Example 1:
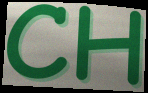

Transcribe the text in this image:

CH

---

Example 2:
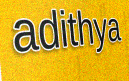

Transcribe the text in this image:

adithya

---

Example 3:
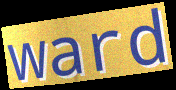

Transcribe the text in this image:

ward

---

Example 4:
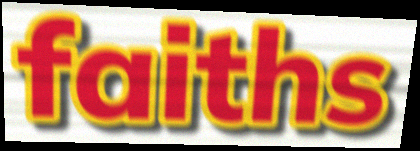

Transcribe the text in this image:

faiths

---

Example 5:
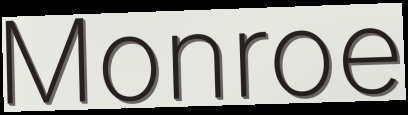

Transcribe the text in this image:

Monroe